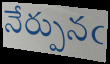
నేర్పునఁ